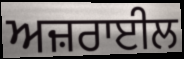
ਅਜ਼ਰਾਈਲ